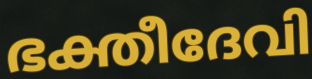
ഭക്തീദേവി